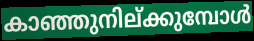
കാഞ്ഞുനില്ക്കുമ്പോൾ